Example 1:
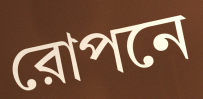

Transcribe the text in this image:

রোপনে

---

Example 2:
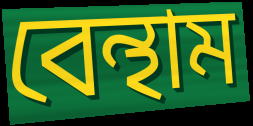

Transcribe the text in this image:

বেন্থাম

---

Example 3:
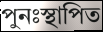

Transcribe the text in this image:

পুনঃস্থাপিত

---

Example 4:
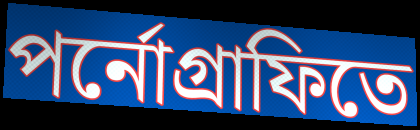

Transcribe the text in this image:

পর্নোগ্রাফিতে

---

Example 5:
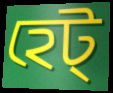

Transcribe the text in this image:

হেট্